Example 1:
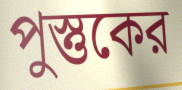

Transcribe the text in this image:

পুস্তুকের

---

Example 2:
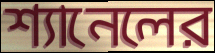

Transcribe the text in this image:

শ্যানেলের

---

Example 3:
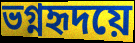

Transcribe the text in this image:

ভগ্নহৃদয়ে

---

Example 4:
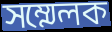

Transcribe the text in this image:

সম্মেলক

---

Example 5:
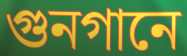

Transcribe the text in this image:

গুনগানে